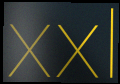
xxl